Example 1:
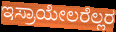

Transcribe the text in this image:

ಇಸ್ರಾಯೇಲರೆಲ್ಲರ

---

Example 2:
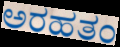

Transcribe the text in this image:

ಅರಹತಂ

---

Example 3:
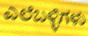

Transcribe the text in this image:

ಎಲೆಬಳ್ಳಿಗಳು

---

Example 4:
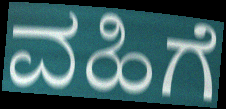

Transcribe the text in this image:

ವಹಿಗೆ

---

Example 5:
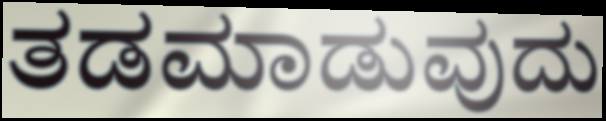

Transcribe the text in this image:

ತಡಮಾಡುವುದು